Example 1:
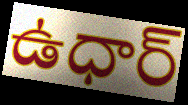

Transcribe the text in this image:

ఉధార్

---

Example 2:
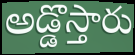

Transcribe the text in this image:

అడ్డొస్తారు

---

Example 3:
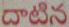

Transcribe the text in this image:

దాటిన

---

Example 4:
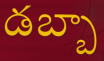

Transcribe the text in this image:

డబ్బా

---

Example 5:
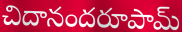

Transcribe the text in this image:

చిదానందరూపామ్